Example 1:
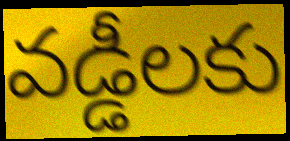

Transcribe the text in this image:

వడ్డీలకు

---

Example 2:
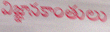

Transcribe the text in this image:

విజ్ఞానకాంతులు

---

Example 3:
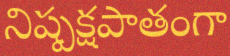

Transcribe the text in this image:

నిష్పక్షపాతంగా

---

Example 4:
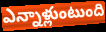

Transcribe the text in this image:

ఎన్నాళ్లుంటుంది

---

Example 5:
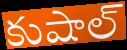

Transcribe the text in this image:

కుషాల్